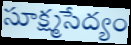
సూక్ష్మసేద్యం